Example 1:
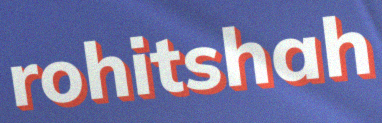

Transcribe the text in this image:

rohitshah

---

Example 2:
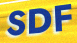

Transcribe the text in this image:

SDF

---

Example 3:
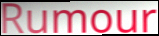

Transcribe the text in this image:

Rumour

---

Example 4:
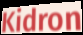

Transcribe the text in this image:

Kidron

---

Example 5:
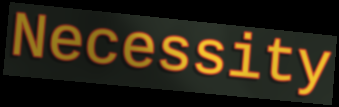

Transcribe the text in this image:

Necessity